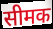
सीमक